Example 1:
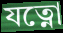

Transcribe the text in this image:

যত্নো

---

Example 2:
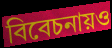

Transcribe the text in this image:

বিবেচনায়ও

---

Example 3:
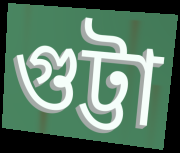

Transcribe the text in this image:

গুট্টা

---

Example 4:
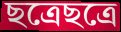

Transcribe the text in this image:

ছত্রেছত্রে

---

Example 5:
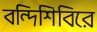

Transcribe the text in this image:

বন্দিশিবিরে